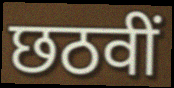
छठवीं